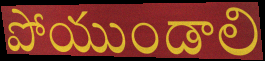
పోయుండాలి